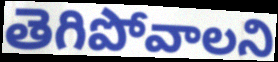
తెగిపోవాలని